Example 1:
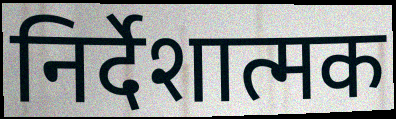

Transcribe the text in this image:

निर्देशात्मक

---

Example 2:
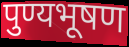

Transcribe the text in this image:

पुण्यभूषण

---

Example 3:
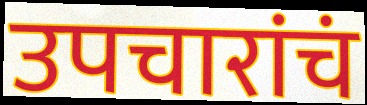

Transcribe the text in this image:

उपचारांचं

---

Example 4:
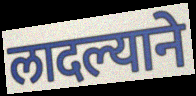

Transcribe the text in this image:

लादल्याने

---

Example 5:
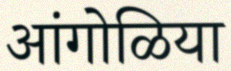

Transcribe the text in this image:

आंगोळिया